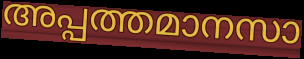
അപ്പത്തമാനസാ